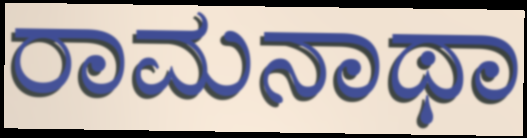
ರಾಮನಾಥಾ